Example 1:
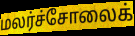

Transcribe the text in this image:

மலர்ச்சோலைக்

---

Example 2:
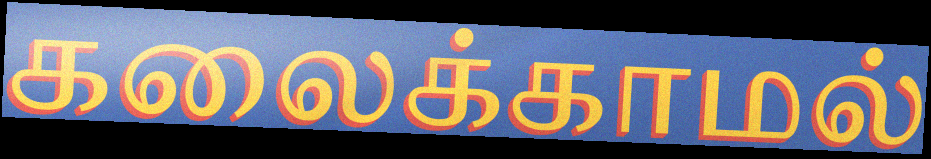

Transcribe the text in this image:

கலைக்காமல்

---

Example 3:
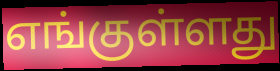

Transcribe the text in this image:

எங்குள்ளது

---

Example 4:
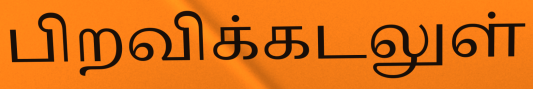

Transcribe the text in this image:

பிறவிக்கடலுள்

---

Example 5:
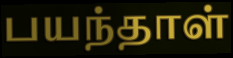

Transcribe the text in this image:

பயந்தாள்